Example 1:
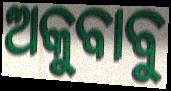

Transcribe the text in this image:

ଅକୁବାବୁ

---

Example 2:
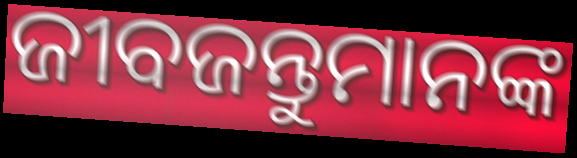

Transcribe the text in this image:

ଜୀବଜନ୍ତୁମାନଙ୍କ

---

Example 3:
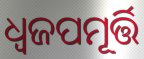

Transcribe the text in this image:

ଧ୍ୱଜପମୂର୍ତ୍ତି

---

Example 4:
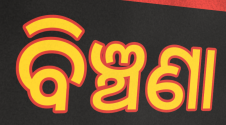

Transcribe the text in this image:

ବିଞ୍ଚଣା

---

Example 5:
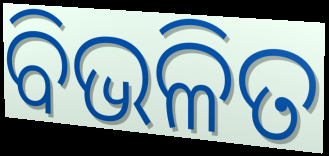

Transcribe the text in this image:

ବିଭଳିତ